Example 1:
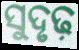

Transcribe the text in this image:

ସୁଦୃଢ଼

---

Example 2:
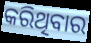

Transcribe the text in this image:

କରିଥିବାର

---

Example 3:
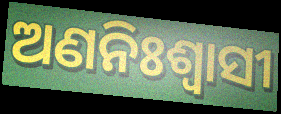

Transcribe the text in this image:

ଅଣନିଃଶ୍ଵାସୀ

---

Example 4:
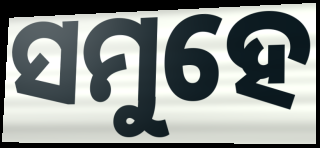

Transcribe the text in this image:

ସମୁହେ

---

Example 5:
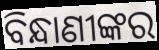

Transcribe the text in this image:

ବିନ୍ଧାଣୀଙ୍କର